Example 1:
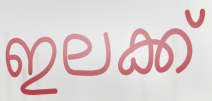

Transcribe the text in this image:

ഇലക്ക്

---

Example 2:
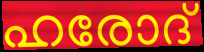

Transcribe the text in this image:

ഹരോദ്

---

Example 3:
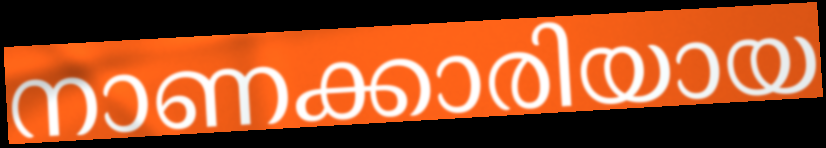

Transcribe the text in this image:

നാണക്കാരിയായ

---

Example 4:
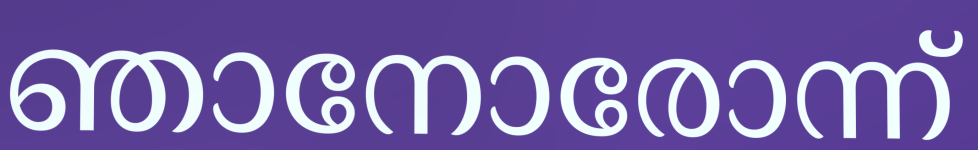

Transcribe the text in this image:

ഞാനോരോന്ന്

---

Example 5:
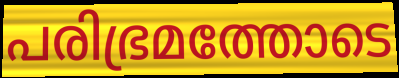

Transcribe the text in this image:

പരിഭ്രമത്തോടെ